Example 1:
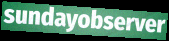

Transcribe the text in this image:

sundayobserver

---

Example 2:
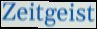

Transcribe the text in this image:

Zeitgeist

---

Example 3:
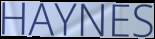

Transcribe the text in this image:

HAYNES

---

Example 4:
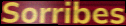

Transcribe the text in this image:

Sorribes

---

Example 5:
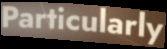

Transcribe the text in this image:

Particularly